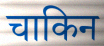
चाकिन